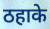
ठहाके